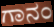
ಗಾನಂ